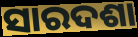
ସାରଦଶା